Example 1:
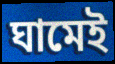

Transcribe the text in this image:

ঘামেই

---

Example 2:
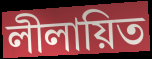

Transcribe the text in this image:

লীলায়িত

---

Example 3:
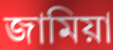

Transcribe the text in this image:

জামিয়া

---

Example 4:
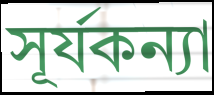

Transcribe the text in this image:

সূর্যকন্যা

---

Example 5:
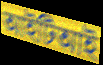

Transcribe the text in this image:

আইটিআই